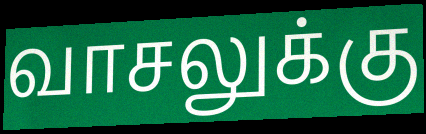
வாசலுக்கு